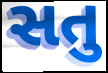
સતુ